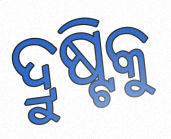
ଦ୍ରୁଷ୍ଟିକୁ